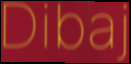
Dibaj